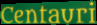
Centauri